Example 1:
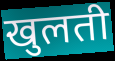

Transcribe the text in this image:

खुलती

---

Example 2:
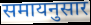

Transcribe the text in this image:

समायनुसार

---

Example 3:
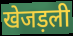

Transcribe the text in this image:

खेजड़ली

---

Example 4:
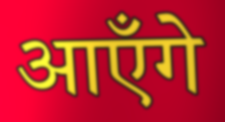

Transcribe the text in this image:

आएँगे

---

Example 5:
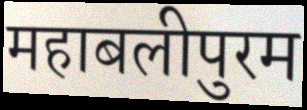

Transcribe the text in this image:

महाबलीपुरम